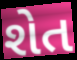
શેત